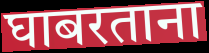
घाबरताना